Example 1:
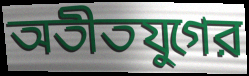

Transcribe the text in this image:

অতীতযুগের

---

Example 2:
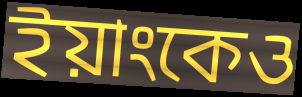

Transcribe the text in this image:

ইয়াংকেও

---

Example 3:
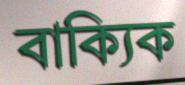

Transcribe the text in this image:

বাক্যিক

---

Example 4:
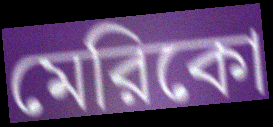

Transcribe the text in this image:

মেরিকো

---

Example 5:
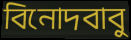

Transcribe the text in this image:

বিনোদবাবু